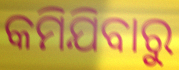
କମିଯିବାରୁ